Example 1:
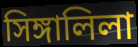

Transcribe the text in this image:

সিঙ্গালিলা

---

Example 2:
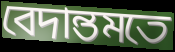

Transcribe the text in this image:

বেদান্তমতে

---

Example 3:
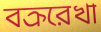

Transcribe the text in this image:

বক্ররেখা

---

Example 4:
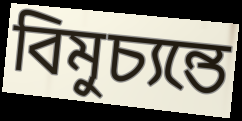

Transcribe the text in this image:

বিমুচ্যন্তে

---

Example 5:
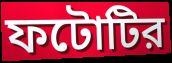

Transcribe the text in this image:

ফটোটির